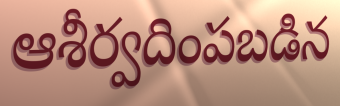
ఆశీర్వదింపబడిన